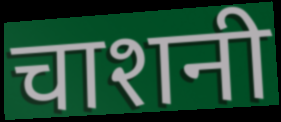
चाशनी